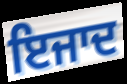
ਇਜਾਦ